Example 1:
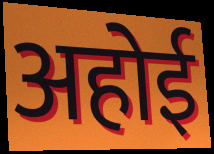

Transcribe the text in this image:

अहोई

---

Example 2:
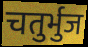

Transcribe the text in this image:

चतुर्भुज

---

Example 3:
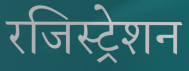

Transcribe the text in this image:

रजिस्ट्रेशन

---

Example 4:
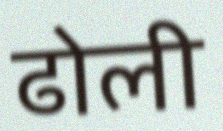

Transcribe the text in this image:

ढोली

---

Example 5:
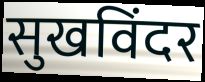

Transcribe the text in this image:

सुखविंदर